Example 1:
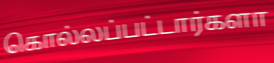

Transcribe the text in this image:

கொல்லப்பட்டார்களா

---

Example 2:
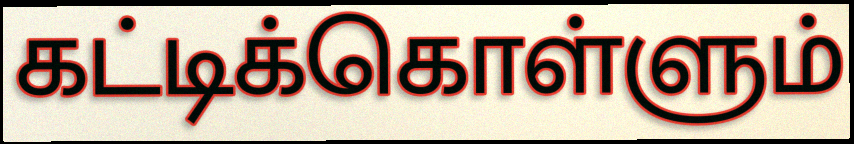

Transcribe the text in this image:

கட்டிக்கொள்ளும்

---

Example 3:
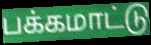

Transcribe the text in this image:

பக்கமாட்டு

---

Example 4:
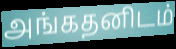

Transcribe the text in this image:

அங்கதனிடம்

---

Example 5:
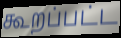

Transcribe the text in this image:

கூறப்பட்ட